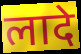
लादे